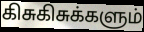
கிசுகிசுக்களும்